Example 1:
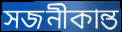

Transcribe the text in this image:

সজনীকান্ত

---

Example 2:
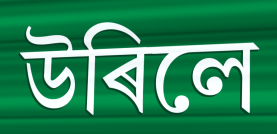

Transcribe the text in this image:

উৰিলে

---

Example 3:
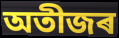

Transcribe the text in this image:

অতীজৰ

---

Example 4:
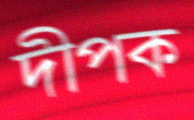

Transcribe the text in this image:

দীপক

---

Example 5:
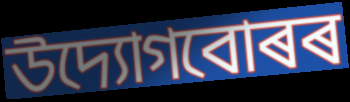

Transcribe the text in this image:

উদ্যোগবোৰৰ